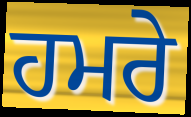
ਹਮਰੇ